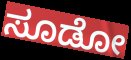
ಸೂಡೋ